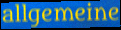
allgemeine